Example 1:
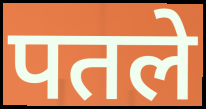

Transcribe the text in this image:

पतले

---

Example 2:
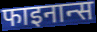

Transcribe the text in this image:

फाइनान्स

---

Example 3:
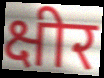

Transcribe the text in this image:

क्षीर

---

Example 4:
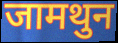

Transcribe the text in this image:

जामथुन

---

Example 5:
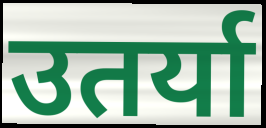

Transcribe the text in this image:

उतर्या